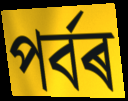
পৰ্বৰ